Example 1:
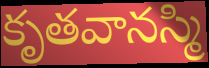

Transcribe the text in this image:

కృతవానస్మి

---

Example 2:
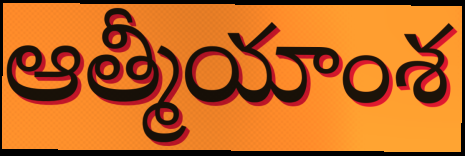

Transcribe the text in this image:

ఆత్మీయాంశ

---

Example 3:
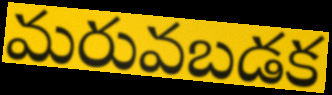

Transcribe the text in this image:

మరువబడక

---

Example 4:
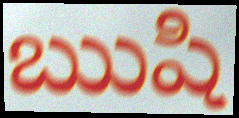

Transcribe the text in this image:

ఋషి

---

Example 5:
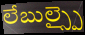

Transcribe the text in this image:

లేబుల్స్పై